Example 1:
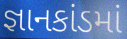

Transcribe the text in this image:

જ્ઞાનકાંડમાં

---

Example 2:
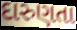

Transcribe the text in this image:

દારુણતા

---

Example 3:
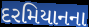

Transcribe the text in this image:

દરમિયાનના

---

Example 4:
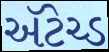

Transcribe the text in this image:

ઍટેચ્ડ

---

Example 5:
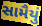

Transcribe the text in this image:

સામૈયું